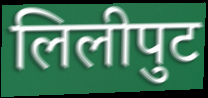
लिलीपुट